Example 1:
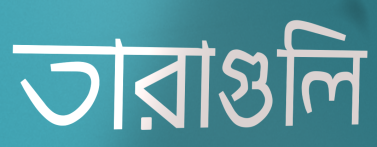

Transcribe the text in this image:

তারাগুলি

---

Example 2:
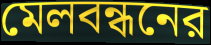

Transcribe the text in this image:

মেলবন্ধনের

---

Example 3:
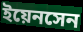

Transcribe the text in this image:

ইয়েনসেন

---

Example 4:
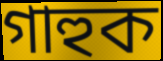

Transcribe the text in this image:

গাহুক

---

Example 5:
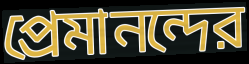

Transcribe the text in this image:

প্রেমানন্দের